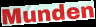
Munden